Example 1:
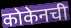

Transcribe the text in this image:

कोकेनची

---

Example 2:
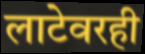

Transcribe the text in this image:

लाटेवरही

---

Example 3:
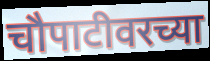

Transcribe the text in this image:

चौपाटीवरच्या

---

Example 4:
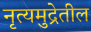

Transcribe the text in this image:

नृत्यमुद्रेतील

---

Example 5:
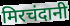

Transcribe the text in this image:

मिरचंदानी